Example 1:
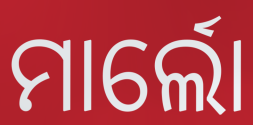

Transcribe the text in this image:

ମାର୍ଲୋ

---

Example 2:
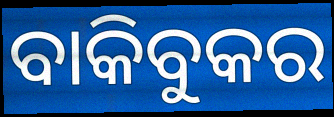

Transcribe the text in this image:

ବାକିବୁକର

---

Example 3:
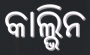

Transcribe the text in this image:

କାଲ୍ଭିନ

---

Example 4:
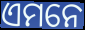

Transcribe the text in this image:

ଏମନେ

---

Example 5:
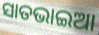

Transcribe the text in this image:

ସାତଭାଇଆ